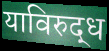
याविरुद्ध